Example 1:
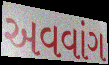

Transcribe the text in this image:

અવવાંગ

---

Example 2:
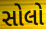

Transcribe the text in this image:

સોલો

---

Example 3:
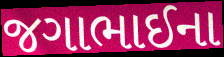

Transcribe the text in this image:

જગાભાઈના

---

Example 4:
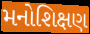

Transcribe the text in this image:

મનોશિક્ષણ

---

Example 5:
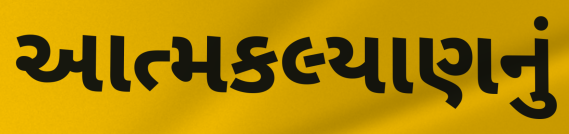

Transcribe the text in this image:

આત્મકલ્યાણનું